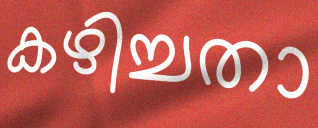
കഴിച്ചതാ